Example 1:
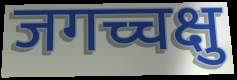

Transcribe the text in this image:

जगच्चक्षु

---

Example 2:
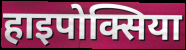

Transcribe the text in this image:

हाइपोक्सिया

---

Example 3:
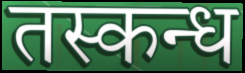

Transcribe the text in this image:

तस्कन्ध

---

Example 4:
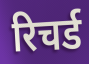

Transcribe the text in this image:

रिचर्ड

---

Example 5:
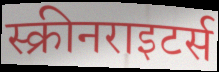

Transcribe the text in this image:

स्क्रीनराइटर्स